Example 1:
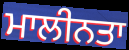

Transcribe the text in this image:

ਮਾਲੀਨਤਾ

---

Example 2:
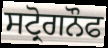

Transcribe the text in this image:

ਸਟ੍ਰੋਗਨੌਫ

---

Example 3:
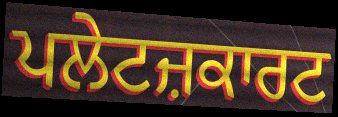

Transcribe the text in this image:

ਪਲੇਟਜ਼ਕਾਰਟ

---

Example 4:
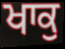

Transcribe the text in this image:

ਖਾਕੁ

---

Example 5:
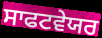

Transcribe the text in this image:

ਸਾਫਟਵੇਯਰ